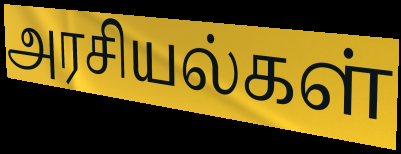
அரசியல்கள்